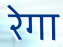
रेगा